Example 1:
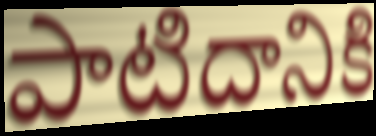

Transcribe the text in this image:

పాటిదానికి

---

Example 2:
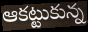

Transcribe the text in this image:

ఆకట్టుకున్న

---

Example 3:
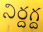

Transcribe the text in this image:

నిర్దగ్ద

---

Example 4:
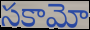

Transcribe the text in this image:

సకామో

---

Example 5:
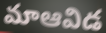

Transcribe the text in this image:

మాఆవిడ